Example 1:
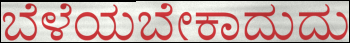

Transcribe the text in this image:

ಬೆಳೆಯಬೇಕಾದುದು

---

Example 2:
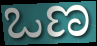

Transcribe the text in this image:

ಒಣ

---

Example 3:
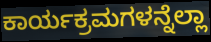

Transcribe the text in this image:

ಕಾರ್ಯಕ್ರಮಗಳನ್ನೆಲ್ಲಾ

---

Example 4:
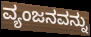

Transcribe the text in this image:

ವ್ಯಂಜನವನ್ನು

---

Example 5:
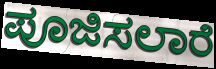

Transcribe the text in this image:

ಪೂಜಿಸಲಾರೆ